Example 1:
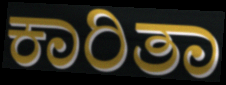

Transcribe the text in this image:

ಕಾರಿತಾ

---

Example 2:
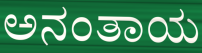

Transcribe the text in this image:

ಅನಂತಾಯ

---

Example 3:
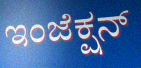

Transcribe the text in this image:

ಇಂಜೆಕ್ಷನ್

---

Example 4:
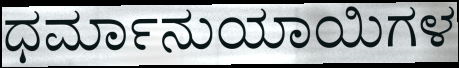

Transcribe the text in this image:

ಧರ್ಮಾನುಯಾಯಿಗಳ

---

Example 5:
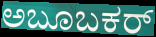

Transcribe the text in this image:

ಅಬೂಬಕರ್